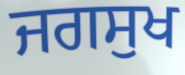
ਜਗਸੁਖ